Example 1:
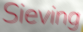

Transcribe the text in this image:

Sieving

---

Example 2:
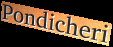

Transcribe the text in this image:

Pondicheri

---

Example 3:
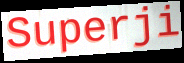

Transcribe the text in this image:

Superji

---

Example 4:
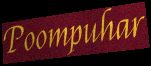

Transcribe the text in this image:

Poompuhar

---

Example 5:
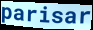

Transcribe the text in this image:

parisar